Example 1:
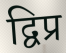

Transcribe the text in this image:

द्विप्र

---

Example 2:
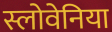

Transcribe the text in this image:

स्लोवेनिया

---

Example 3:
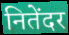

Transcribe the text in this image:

नितेंदर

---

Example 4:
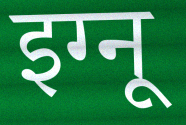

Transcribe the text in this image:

इग्नू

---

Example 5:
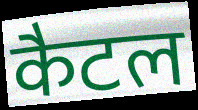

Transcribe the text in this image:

कैटल